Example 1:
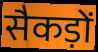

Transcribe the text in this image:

सैकड़ों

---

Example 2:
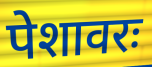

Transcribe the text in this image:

पेशावरः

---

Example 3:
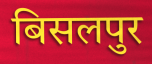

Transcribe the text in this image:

बिसलपुर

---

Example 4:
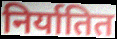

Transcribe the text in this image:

निर्यातित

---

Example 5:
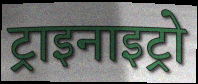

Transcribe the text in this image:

ट्राइनाइट्रो